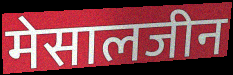
मेसालजीन